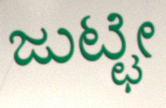
ಜುಟ್ಟೇ